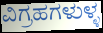
ವಿಗ್ರಹಗಳುಳ್ಳ